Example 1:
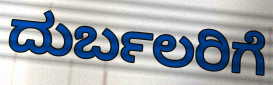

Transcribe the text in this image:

ದುರ್ಬಲರಿಗೆ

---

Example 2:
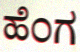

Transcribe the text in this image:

ಹೆಂಗ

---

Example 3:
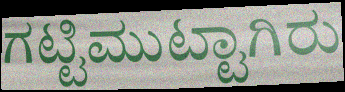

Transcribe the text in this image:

ಗಟ್ಟಿಮುಟ್ಟಾಗಿರು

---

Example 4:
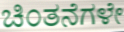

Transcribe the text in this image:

ಚಿಂತನೆಗಳೇ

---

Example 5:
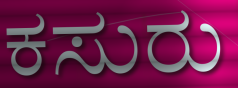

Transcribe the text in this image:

ಕಸುರು